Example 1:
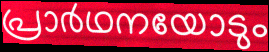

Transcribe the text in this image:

പ്രാർഥനയോടും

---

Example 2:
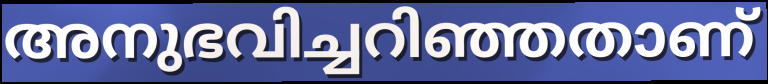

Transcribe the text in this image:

അനുഭവിച്ചറിഞ്ഞതാണ്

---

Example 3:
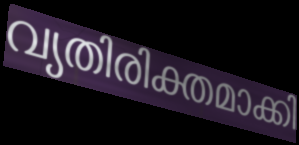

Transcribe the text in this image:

വ്യതിരിക്തമാക്കി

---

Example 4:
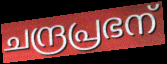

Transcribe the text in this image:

ചന്ദ്രപ്രഭന്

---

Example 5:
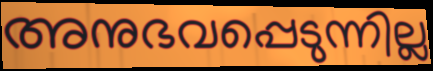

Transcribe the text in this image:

അനുഭവപ്പെടുന്നില്ല